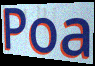
Poa